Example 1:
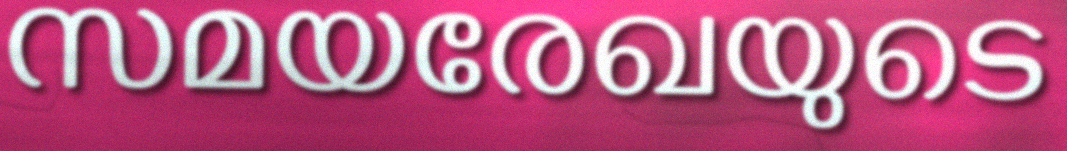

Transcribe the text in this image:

സമയരേഖയുടെ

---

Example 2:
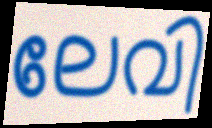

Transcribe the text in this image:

ലേവി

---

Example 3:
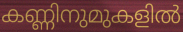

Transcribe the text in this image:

കണ്ണിനുമുകളിൽ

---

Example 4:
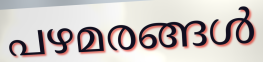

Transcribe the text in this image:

പഴമരങ്ങൾ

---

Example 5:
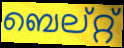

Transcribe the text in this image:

ബെല്റ്റ്